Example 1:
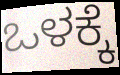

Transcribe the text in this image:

ಒಳಕ್ಕೆ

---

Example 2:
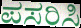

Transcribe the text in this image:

ಪಸರಿಸಿ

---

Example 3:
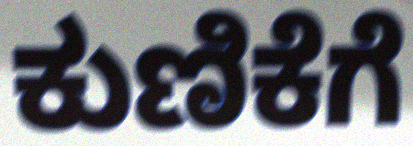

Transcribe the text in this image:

ಕುಣಿಕೆಗೆ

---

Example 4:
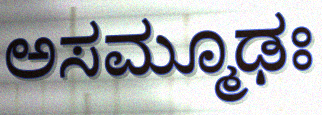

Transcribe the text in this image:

ಅಸಮ್ಮೂಢಃ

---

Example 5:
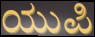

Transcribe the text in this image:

ಯುಪಿ